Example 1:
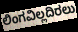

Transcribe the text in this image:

ಲಿಂಗವಿಲ್ಲದಿರಲು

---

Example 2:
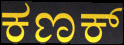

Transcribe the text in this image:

ಕಣಕ್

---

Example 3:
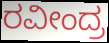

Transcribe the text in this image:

ರವೀಂದ್ರ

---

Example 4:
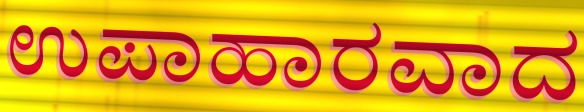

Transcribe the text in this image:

ಉಪಾಹಾರವಾದ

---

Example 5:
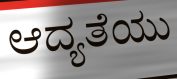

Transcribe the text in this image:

ಆದ್ಯತೆಯು